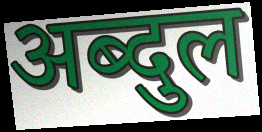
अब्दुल